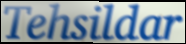
Tehsildar